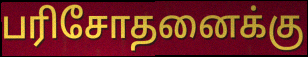
பரிசோதனைக்கு